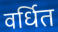
वर्धित